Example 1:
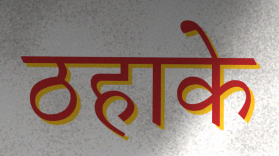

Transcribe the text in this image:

ठहाके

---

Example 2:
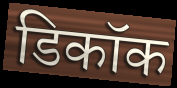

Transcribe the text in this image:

डिकॉक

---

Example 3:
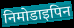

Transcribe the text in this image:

निमोडाइपिन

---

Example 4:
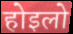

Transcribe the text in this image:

होइलो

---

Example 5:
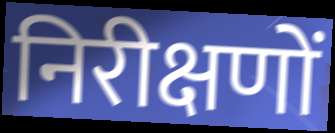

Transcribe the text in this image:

निरीक्षणों